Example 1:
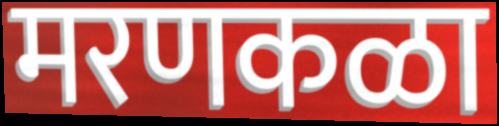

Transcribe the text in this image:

मरणकळा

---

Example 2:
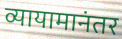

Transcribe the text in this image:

व्यायामानंतर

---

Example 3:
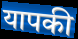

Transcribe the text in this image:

यापकी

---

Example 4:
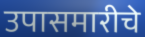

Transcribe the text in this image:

उपासमारीचे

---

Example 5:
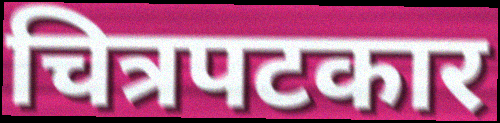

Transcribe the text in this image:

चित्रपटकार